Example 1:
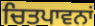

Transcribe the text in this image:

ਚਿਤਪਾਵਨਾਂ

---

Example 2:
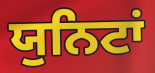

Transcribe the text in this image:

ਯੁਨਿਟਾਂ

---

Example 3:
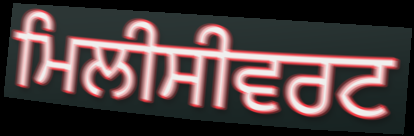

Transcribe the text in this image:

ਮਿਲੀਸੀਵਰਟ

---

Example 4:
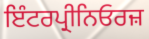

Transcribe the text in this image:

ਇੰਟਰਪ੍ਰੀਨਿਓਰਜ਼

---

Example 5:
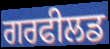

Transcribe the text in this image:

ਗਰਫੀਲਡ